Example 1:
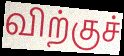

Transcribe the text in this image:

விற்குச்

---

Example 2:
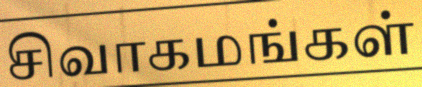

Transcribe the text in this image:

சிவாகமங்கள்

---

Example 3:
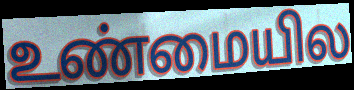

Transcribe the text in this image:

உண்மையில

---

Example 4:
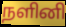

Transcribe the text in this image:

நளினி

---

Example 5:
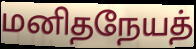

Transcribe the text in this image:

மனிதநேயத்